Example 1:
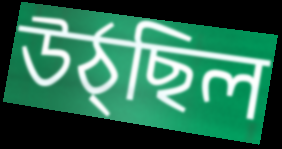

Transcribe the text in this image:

উঠ্ছিল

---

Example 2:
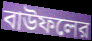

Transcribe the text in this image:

বাউফলের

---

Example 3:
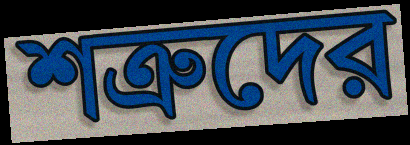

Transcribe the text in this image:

শত্রুদের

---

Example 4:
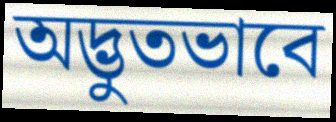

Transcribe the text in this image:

অদ্ভুতভাবে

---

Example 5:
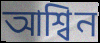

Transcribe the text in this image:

আশ্বিন